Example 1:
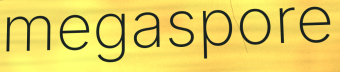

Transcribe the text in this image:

megaspore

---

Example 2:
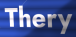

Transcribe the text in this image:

Thery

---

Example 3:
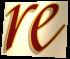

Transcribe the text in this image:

re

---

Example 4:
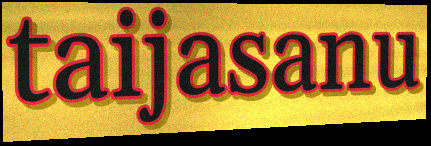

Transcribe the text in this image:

taijasanu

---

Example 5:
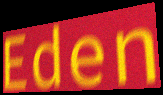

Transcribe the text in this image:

Eden